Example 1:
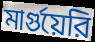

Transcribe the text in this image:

মার্গুয়েরি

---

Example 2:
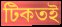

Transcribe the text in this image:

টিকতই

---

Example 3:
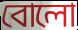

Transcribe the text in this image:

বোলো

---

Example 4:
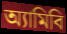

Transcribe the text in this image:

অ্যামিবি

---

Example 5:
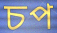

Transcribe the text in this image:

চপ